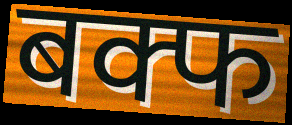
बक्फ